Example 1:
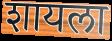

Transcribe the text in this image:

शायला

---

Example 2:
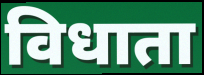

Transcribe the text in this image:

विधाता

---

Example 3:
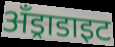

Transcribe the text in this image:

अँड्राडाइट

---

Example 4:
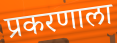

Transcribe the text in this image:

प्रकरणाला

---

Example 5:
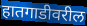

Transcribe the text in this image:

हातगाडीवरील